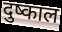
दुष्काल